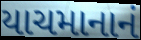
યાચમાનાનં